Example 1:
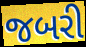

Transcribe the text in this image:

જબરી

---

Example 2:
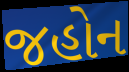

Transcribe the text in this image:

જહોન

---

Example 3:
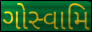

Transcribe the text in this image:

ગોસ્વામિ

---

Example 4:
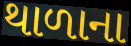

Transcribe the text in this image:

થાળાના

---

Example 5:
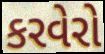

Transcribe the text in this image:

કરવેરો